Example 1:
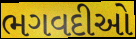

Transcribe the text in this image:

ભગવદીઓ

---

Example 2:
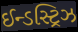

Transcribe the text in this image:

ઈન્ડસ્ટ્રિઝ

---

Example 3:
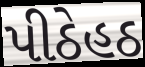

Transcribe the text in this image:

પીઠેહઠ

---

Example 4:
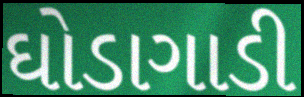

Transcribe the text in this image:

ઘોડાગાડી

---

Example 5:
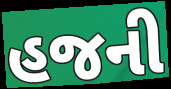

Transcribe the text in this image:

હજની